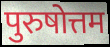
पुरुषोत्तम